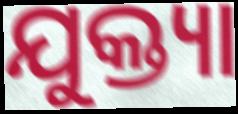
ଯୁକ୍ତ୍ୟା